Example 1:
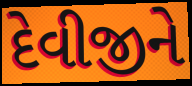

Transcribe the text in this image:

દેવીજીને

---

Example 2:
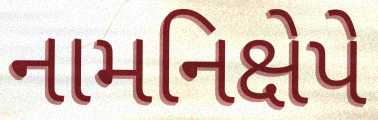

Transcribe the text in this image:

નામનિક્ષેપે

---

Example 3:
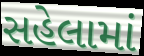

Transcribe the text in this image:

સહેલામાં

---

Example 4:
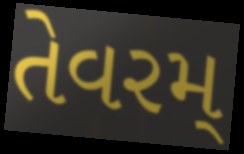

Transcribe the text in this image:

તેવરમ્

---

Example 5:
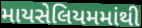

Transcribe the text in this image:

માયસેલિયમમાંથી